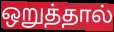
ஒறுத்தால்